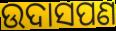
ଉଦାସପଣ